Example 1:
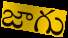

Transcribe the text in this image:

జాగు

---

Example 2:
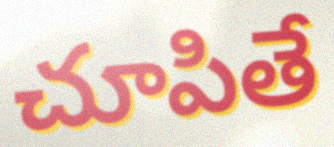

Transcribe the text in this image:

చూపితే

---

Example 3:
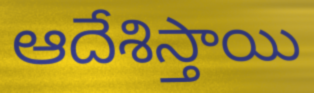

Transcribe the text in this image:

ఆదేశిస్తాయి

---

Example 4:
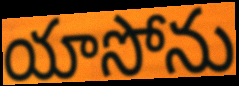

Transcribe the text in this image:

యాసోను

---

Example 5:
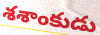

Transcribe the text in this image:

శశాంకుడు